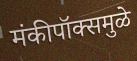
मंकीपॉक्समुळे